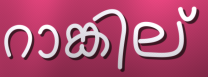
റാങ്കില്